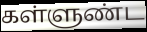
கள்ளுண்ட